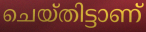
ചെയ്തിട്ടാണ്